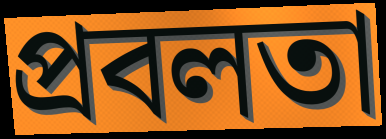
প্ৰবলতা